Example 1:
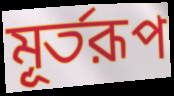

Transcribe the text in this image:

মূর্তরূপ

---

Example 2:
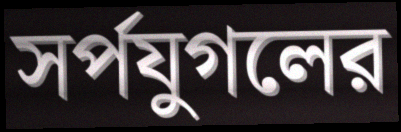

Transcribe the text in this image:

সর্পযুগলের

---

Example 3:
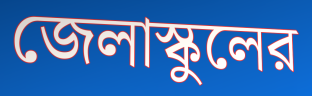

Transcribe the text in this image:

জেলাস্কুলের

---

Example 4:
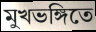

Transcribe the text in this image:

মুখভঙ্গিতে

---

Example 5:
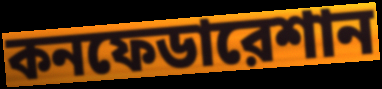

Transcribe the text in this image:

কনফেডারেশান